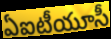
ఏఐటీయూసీ